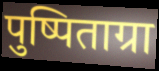
पुष्पिताग्रा